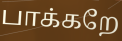
பாக்கறே